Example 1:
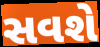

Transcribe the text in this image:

સવશે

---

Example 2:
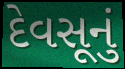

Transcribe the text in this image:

દેવસૂનું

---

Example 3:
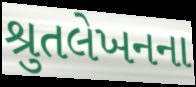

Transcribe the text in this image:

શ્રુતલેખનના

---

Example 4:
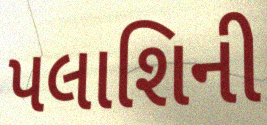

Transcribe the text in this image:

પલાશિની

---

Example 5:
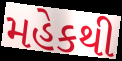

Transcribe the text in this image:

મહેકથી